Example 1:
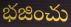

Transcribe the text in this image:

భజించు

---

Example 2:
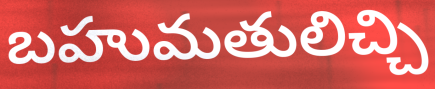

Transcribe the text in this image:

బహుమతులిచ్చి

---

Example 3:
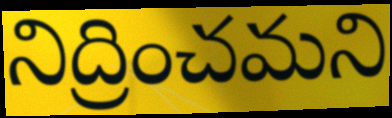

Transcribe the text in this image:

నిద్రించమని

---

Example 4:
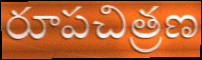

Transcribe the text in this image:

రూపచిత్రణ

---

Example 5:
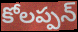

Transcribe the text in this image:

కోలప్పన్